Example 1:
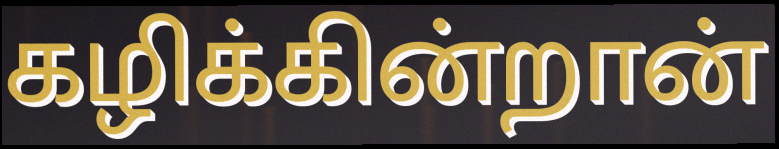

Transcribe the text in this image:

கழிக்கின்றான்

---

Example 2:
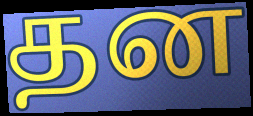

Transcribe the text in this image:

தன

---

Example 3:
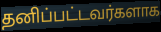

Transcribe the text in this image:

தனிப்பட்டவர்களாக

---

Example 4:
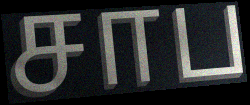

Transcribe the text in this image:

சாப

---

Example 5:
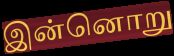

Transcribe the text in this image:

இன்னொறு